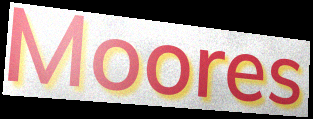
Moores